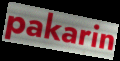
pakarin